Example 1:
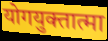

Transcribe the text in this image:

योगयुक्तात्मा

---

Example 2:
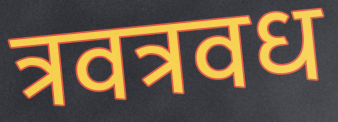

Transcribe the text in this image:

त्रवत्रवध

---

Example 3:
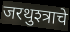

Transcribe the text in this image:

जरथुश्त्राचे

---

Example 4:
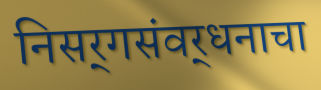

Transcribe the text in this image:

निसर्गसंवर्धनाचा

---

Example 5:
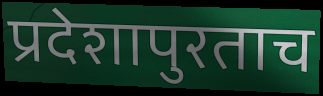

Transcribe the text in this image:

प्रदेशापुरताच